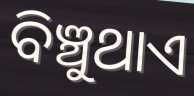
ବିଞ୍ଚୁଥାଏ